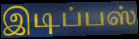
இடிப்பஸ்